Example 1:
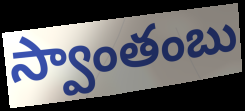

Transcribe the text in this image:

స్వాంతంబు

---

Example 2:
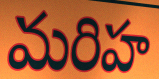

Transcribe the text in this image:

మరిహ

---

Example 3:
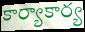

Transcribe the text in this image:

కార్యాకార్య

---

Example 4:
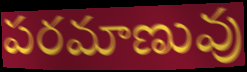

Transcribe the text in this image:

పరమాణువు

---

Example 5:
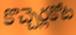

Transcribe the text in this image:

కొచ్చెర్లకోట